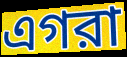
এগরা